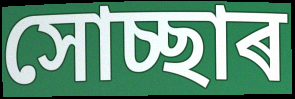
সোচ্ছাৰ